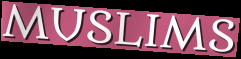
MUSLIMS